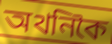
অথনিকৈ